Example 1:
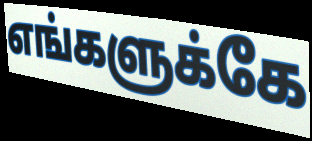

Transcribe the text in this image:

எங்களுக்கே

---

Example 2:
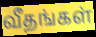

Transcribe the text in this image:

வீதங்கள்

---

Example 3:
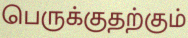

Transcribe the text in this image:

பெருக்குதற்கும்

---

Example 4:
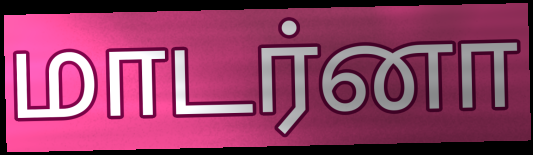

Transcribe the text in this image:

மாடர்னா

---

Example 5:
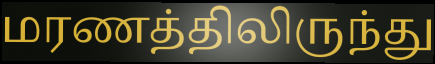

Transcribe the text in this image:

மரணத்திலிருந்து